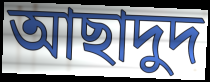
আছাদুদ